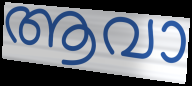
ആവാ